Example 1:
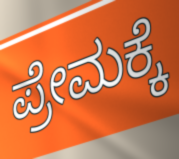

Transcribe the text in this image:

ಪ್ರೇಮಕ್ಕೆ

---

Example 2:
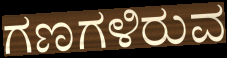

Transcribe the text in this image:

ಗಣಗಳಿರುವ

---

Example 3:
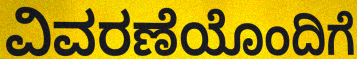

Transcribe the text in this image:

ವಿವರಣೆಯೊಂದಿಗೆ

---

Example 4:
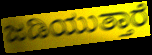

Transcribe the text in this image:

ಜಡಿಯುತ್ತಾರೆ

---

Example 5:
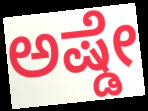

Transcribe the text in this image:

ಅಷ್ಡೇ